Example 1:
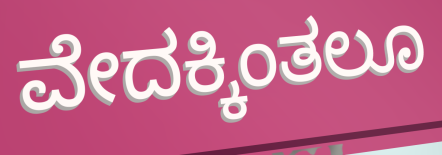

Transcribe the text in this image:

ವೇದಕ್ಕಿಂತಲೂ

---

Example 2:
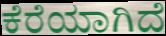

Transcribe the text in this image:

ಕೆರೆಯಾಗಿದೆ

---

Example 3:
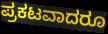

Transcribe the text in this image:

ಪ್ರಕಟವಾದರೂ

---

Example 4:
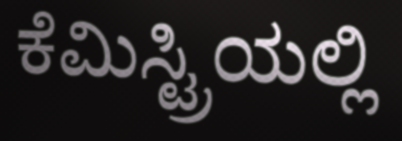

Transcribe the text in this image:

ಕೆಮಿಸ್ಟ್ರಿಯಲ್ಲಿ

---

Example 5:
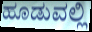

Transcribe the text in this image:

ಹೂಡುವಲ್ಲಿ